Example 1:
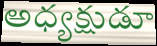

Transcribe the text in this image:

అధ్యక్షుడూ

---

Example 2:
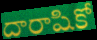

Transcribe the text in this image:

దారాషికో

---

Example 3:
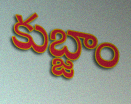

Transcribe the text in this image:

కుబ్జాం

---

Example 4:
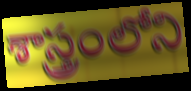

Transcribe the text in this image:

శాస్త్రంలోని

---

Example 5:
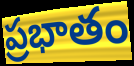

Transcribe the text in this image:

ప్రభాతం